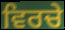
ਵਿਰਚੇ